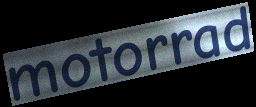
motorrad